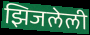
झिजलेली